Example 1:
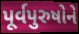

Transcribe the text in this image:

પૂર્વપુરુષોને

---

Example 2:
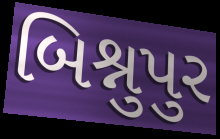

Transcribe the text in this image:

બિશ્નુપુર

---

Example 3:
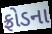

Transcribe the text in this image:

ફ્રોડના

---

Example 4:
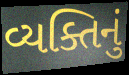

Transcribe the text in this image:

વ્યક્તિનું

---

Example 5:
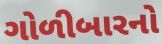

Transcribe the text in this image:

ગોળીબારનો